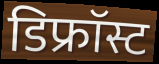
डिफ्रॉस्ट